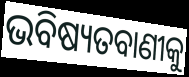
ଭବିଷ୍ୟତବାଣୀକୁ